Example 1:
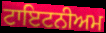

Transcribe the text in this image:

ਟਾਇਟਨੀਅਮ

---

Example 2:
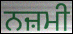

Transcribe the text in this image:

ਨਜ਼ਮੀ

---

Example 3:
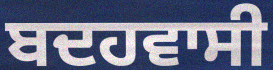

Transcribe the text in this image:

ਬਦਹਵਾਸੀ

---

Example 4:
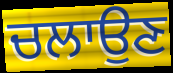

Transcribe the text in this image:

ਚਲਾਉਣ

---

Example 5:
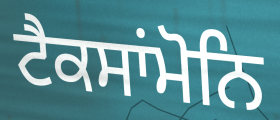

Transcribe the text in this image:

ਟੈਕਸਾਂਮੋਨਿ